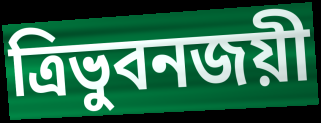
ত্রিভুবনজয়ী